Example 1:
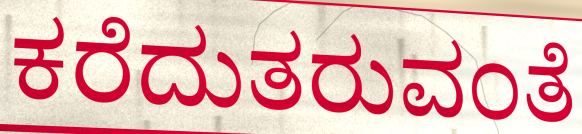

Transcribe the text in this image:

ಕರೆದುತರುವಂತೆ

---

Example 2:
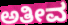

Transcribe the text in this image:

ಅತೀವ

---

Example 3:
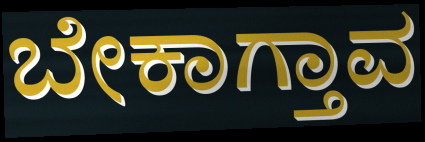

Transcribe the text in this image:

ಬೇಕಾಗ್ತಾವ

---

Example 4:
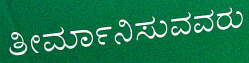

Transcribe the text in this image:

ತೀರ್ಮಾನಿಸುವವರು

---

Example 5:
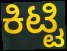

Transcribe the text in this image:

ಕಿಟ್ಟಿ